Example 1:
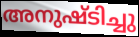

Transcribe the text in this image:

അനുഷ്ടിച്ചു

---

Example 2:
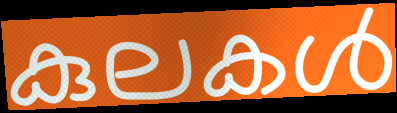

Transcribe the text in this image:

കുലകൾ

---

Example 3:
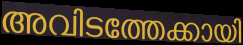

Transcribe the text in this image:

അവിടത്തേക്കായി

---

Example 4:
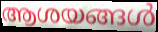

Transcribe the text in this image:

ആശയങ്ങൾ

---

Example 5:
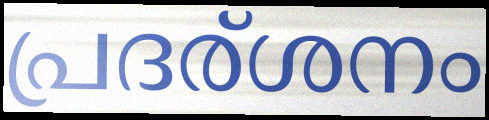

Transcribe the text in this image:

പ്രദര്ശനം